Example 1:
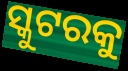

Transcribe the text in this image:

ସ୍କୁଟରକୁ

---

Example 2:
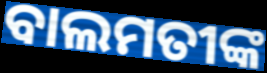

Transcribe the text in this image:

ବାଲମତୀଙ୍କ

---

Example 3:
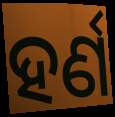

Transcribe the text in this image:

ହର୍ଣ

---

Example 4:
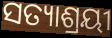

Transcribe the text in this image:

ସତ୍ୟାଶ୍ରୟୀ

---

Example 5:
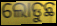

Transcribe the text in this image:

ଲୋଡୁଛ